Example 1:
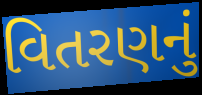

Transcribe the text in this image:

વિતરણનું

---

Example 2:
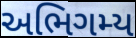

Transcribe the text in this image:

અભિગમ્ય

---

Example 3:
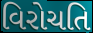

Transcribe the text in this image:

વિરોચતિ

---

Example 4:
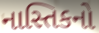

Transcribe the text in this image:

નાસ્તિકનો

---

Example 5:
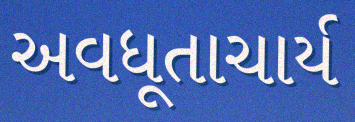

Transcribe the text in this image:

અવધૂતાચાર્ય